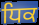
ਧਿਕ